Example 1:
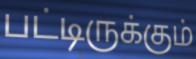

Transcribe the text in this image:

பட்டிருக்கும்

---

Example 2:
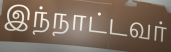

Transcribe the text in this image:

இந்நாட்டவர்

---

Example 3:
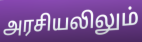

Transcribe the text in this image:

அரசியலிலும்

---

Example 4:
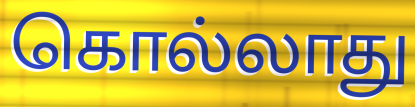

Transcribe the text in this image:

கொல்லாது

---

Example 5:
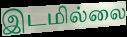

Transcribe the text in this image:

இடமில்லை